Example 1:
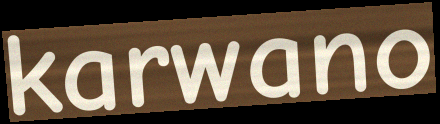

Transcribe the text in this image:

karwano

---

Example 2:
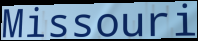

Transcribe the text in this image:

Missouri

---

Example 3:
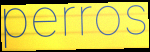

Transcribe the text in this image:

perros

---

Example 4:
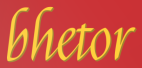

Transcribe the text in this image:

bhetor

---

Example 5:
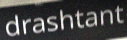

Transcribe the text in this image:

drashtant